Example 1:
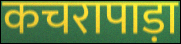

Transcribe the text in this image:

कचरापाड़ा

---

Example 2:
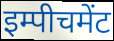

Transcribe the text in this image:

इम्पीचमेंट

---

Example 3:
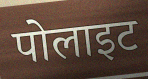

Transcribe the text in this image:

पोलाइट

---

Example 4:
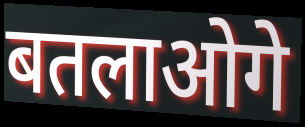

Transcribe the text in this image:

बतलाओगे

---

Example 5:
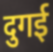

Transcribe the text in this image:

दुगई